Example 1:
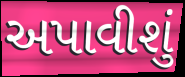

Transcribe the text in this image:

અપાવીશું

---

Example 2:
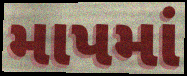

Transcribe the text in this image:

માપમાં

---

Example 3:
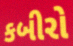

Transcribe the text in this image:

કબીરો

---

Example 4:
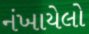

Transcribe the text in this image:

નંખાયેલો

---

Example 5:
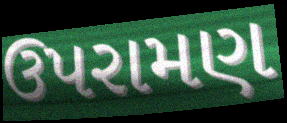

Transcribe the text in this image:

ઉપરામણ